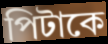
পিটাকে